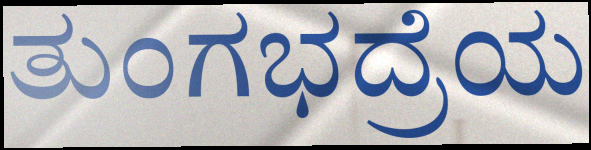
ತುಂಗಭದ್ರೆಯ